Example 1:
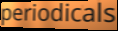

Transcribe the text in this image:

periodicals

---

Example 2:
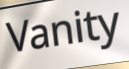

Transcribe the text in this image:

Vanity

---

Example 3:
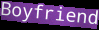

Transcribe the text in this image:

Boyfriend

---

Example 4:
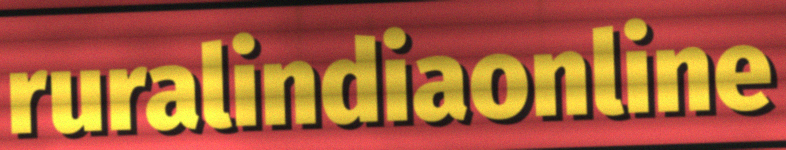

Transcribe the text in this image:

ruralindiaonline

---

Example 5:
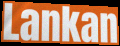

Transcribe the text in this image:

Lankan